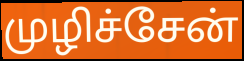
முழிச்சேன்